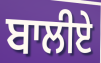
ਬਾਲੀਏ